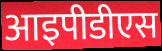
आइपीडीएस